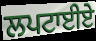
ਲਪਟਾਈਏ